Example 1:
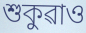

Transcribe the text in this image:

শুকুৱাও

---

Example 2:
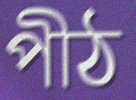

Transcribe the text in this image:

পীঠ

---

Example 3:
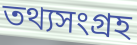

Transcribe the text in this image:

তথ্যসংগ্ৰহ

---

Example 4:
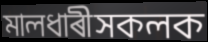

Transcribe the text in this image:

মালধাৰীসকলক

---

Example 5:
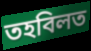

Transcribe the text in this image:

তহবিলত